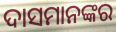
ଦାସମାନଙ୍କର